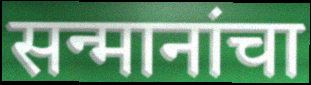
सन्मानांचा